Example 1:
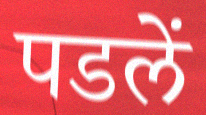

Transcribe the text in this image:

पडलें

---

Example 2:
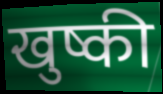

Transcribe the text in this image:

खुष्की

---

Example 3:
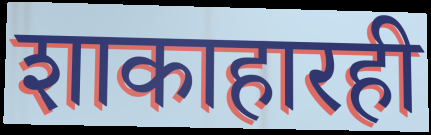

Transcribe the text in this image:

शाकाहारही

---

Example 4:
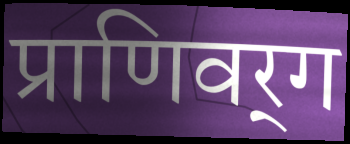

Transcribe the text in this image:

प्राणिवर्ग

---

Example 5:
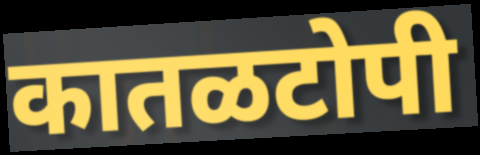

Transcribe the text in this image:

कातळटोपी